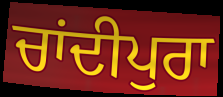
ਚਾਂਦੀਪੁਰਾ